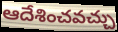
ఆదేశించవచ్చు